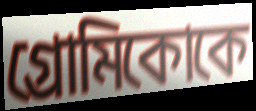
গ্রোমিকোকে